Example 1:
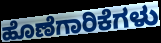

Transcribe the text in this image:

ಹೊಣೆಗಾರಿಕೆಗಳು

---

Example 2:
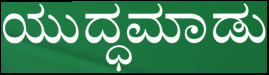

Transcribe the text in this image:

ಯುದ್ಧಮಾಡು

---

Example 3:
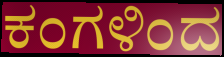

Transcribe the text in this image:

ಕಂಗಳಿಂದ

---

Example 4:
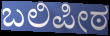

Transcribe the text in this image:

ಬಲಿಪೀಠ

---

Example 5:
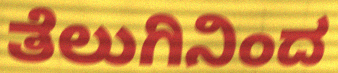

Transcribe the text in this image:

ತೆಲುಗಿನಿಂದ